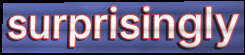
surprisingly